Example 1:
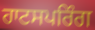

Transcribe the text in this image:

ਹਾਟਸਪਰਿੰਗ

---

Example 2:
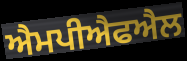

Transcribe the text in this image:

ਐਮਪੀਐਫਐਲ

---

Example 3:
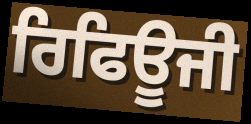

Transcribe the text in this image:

ਰਿਫਿਊਜੀ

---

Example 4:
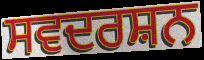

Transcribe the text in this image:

ਸਵਦਰਸ਼ਨ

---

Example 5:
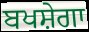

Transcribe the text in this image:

ਬਖਸ਼ੇਗਾ